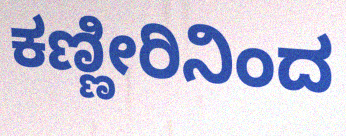
ಕಣ್ಣೀರಿನಿಂದ